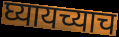
घ्यायच्याच